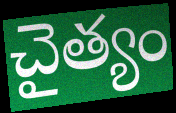
చైత్యం